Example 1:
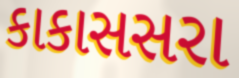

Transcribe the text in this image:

કાકાસસરા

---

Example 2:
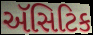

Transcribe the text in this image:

ઍસિટિક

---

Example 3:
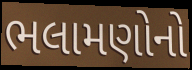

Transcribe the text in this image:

ભલામણોનો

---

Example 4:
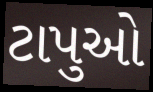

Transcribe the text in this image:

ટાપુઓ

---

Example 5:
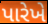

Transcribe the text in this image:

પારેખે